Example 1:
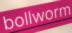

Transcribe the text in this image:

bollworm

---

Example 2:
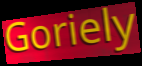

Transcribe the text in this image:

Goriely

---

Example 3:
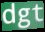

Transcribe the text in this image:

dgt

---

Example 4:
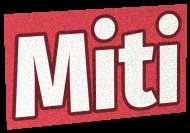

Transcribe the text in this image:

Miti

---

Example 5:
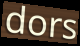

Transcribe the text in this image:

dors